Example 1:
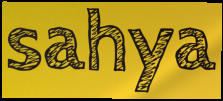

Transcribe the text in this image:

sahya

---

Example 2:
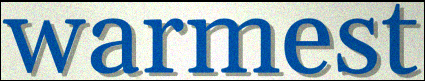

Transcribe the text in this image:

warmest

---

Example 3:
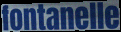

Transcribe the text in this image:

fontanelle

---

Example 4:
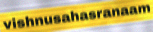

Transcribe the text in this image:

vishnusahasranaam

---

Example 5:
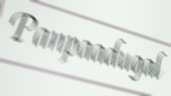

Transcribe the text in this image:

Panpaadugal